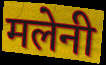
मलेनी